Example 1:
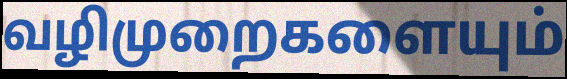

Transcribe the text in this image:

வழிமுறைகளையும்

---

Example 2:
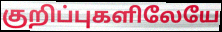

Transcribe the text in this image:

குறிப்புகளிலேயே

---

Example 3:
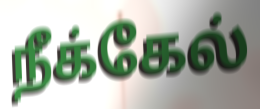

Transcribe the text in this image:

நீக்கேல்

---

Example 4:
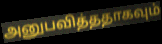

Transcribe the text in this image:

அனுபவித்ததாகவும்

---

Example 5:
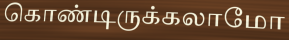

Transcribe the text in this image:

கொண்டிருக்கலாமோ